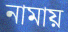
নামায়